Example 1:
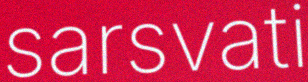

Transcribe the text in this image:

sarsvati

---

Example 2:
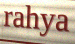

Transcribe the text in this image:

rahya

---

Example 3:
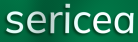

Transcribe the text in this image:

sericea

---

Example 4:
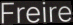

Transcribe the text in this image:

Freire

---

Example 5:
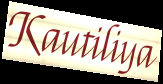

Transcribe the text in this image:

Kautiliya